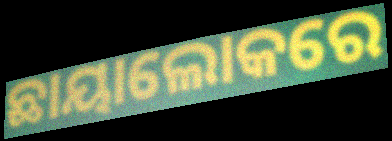
ଛାୟାଲୋକରେ